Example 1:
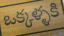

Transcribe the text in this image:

ఒక్కళ్ళకి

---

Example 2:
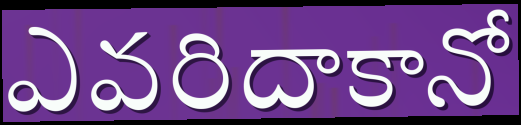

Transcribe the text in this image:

ఎవరిదాకానో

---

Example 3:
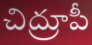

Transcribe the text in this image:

చిద్రూపీ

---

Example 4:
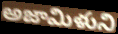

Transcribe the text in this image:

అజామిళుని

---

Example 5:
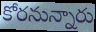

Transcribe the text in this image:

కోరనున్నారు